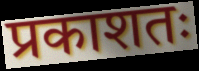
प्रकाशतः